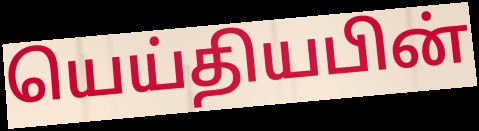
யெய்தியபின்